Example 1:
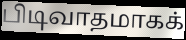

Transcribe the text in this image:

பிடிவாதமாகக்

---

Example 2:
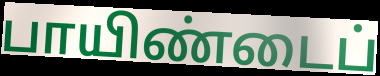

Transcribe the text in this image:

பாயிண்டைப்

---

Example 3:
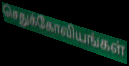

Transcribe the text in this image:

செதுக்கோவியங்கள்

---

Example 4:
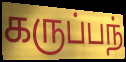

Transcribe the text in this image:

கருப்பந்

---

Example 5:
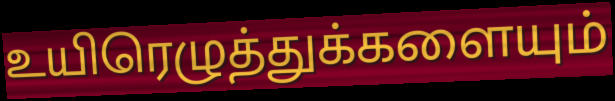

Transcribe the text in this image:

உயிரெழுத்துக்களையும்